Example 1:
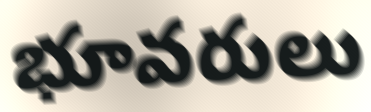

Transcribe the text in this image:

భూవరులు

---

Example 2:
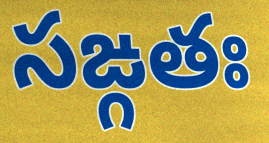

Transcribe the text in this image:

సఙ్గతః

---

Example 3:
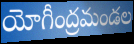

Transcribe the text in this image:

యోగీంద్రమండల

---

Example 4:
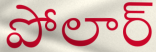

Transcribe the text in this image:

పోలార్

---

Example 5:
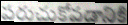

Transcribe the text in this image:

పరుచుకోవడానికి